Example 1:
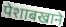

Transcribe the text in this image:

पेशाबखाने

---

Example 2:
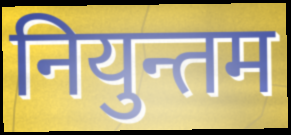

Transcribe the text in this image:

नियुन्तम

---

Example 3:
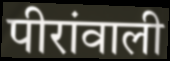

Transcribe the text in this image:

पीरांवाली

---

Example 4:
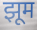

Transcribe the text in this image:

झूम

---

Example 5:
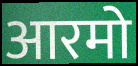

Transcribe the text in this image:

आरमो